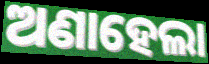
ଅଣାହେଲା